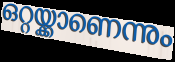
ഒറ്റയ്ക്കാണെന്നും